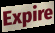
Expire